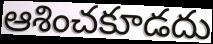
ఆశించకూడదు